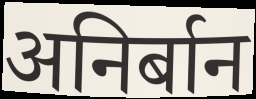
अनिर्बान